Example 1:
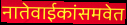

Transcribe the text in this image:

नातेवाईकांसमवेत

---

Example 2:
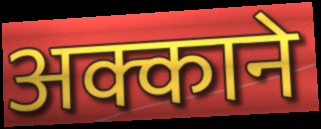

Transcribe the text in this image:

अक्काने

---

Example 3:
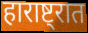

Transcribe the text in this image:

हाराष्ट्रात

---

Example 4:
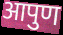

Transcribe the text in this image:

आपुण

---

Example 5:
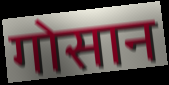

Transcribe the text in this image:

गोसान